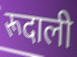
रूदाली